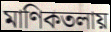
মাণিকতলায়